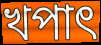
খপাৎ